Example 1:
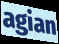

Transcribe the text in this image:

agian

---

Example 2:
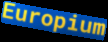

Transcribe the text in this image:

Europium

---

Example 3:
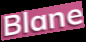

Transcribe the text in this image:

Blane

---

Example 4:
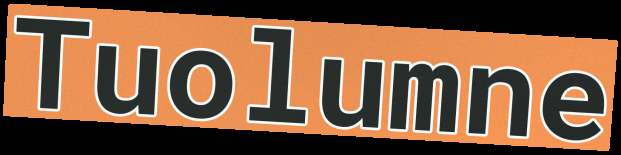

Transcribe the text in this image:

Tuolumne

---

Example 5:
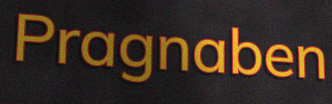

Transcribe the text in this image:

Pragnaben